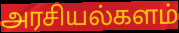
அரசியல்களம்